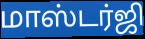
மாஸ்டர்ஜி